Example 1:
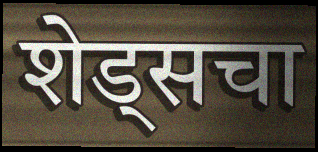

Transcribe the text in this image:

शेड्सचा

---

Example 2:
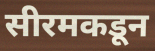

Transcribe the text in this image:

सीरमकडून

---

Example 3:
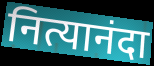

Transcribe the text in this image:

नित्यानंदा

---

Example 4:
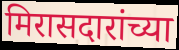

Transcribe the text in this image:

मिरासदारांच्या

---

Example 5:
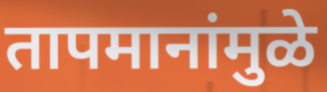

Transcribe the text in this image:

तापमानांमुळे